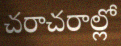
చరాచరాల్లో